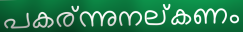
പകര്ന്നുനല്കണം